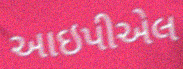
આઇપીએલ